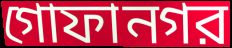
গোফানগর